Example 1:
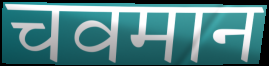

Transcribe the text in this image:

चवमान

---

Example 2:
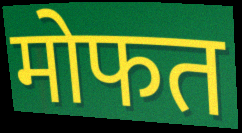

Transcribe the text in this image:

मोफत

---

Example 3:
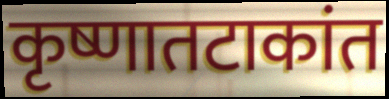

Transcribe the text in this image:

कृष्णातटाकांत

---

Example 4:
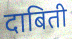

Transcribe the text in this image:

दाबिती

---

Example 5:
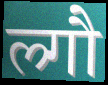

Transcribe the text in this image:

ल्गौ